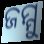
ଜମ୍ମୁ